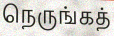
நெருங்கத்